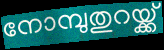
നോമ്പുതുറയ്ക്ക്